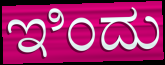
ಇಿಂದು